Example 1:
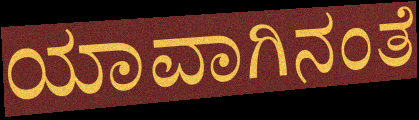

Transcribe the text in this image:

ಯಾವಾಗಿನಂತೆ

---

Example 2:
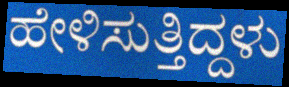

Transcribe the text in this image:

ಹೇಳಿಸುತ್ತಿದ್ದಳು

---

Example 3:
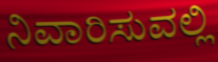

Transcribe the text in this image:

ನಿವಾರಿಸುವಲ್ಲಿ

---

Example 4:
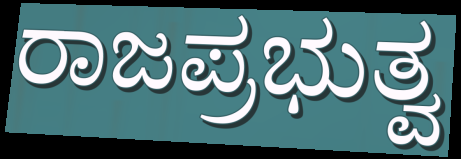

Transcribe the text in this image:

ರಾಜಪ್ರಭುತ್ವ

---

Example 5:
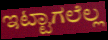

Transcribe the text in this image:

ಇಟ್ಟಾಗಲೆಲ್ಲ